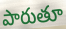
పారుతూ